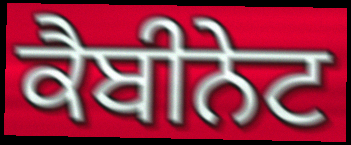
ਕੈਬੀਨੇਟ